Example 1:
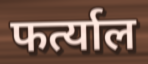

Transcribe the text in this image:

फर्त्याल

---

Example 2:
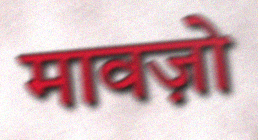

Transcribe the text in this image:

मावज़ो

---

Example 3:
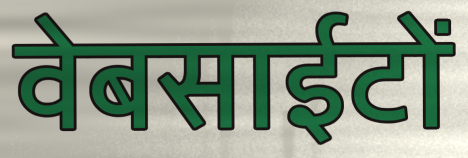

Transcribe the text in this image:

वेबसाईटों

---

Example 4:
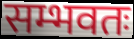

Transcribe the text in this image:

सम्भवतः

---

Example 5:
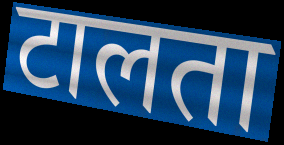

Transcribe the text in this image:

टालता